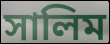
সালিম